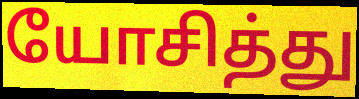
யோசித்து